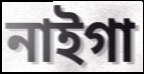
নাইগা